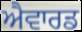
ਐਵਾਰਡ